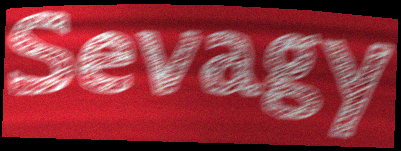
Sevagy